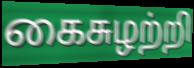
கைசுழற்றி